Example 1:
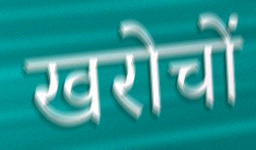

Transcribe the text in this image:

खरोचों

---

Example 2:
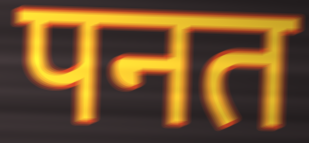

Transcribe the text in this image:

पनत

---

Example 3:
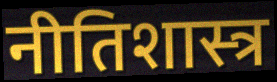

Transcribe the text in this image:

नीतिशास्त्र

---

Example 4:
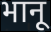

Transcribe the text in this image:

भानू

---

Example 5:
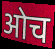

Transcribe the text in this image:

ओच